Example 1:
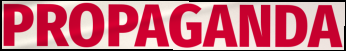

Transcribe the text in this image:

PROPAGANDA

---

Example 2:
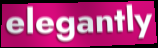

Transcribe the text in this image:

elegantly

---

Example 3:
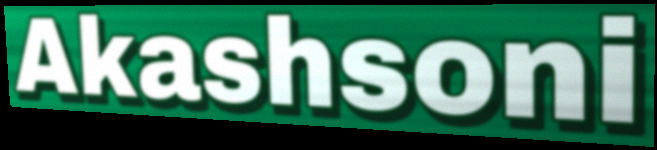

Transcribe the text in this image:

Akashsoni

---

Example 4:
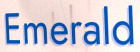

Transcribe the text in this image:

Emerald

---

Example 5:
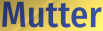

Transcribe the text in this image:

Mutter